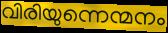
വിരിയുന്നെന്മനം